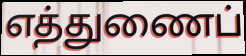
எத்துணைப்